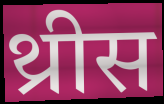
थ्रीस